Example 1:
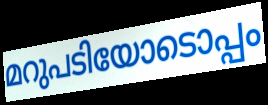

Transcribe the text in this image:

മറുപടിയോടൊപ്പം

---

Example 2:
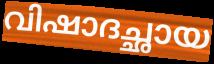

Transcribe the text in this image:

വിഷാദച്ഛായ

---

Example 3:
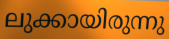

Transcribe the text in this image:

ലുക്കായിരുന്നു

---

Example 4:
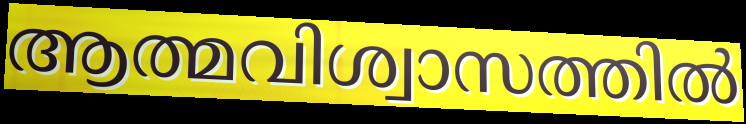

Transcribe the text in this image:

ആത്മവിശ്വാസത്തിൽ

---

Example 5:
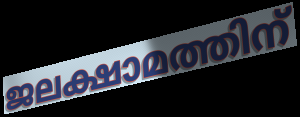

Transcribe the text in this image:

ജലക്ഷാമത്തിന്